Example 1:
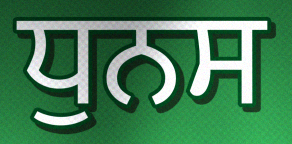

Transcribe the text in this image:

ਧੁਨਸ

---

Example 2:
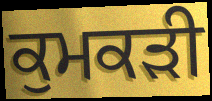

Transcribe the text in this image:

ਕੁਮਕੜੀ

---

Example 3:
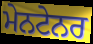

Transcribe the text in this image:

ਮੇਨਟੇਨਰ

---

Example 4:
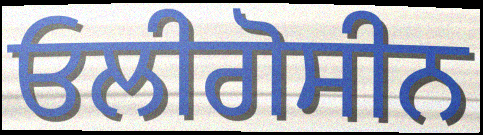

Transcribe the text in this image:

ਓਲੀਗੋਸੀਨ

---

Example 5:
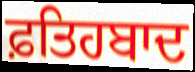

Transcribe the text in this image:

ਫ਼ਤਿਹਬਾਦ